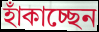
হাঁকাচ্ছেন